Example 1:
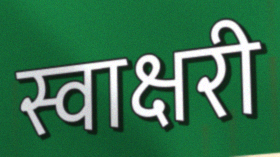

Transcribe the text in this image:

स्वाक्षरी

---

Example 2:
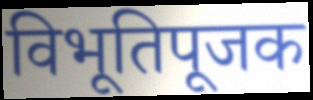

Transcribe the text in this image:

विभूतिपूजक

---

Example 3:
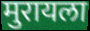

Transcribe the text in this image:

मुरायला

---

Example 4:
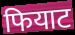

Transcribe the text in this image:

फियाट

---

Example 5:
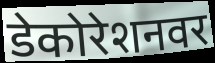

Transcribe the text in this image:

डेकोरेशनवर